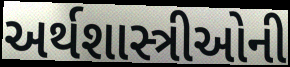
અર્થશાસ્ત્રીઓની